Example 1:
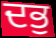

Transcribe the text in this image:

ਦਭੁ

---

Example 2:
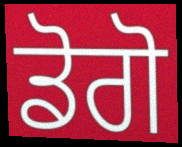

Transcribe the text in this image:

ਡੋਗੋ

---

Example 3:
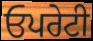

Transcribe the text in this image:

ਓਪਰੇਟੀ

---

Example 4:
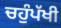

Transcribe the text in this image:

ਚਹੁੰਪੱਖੀ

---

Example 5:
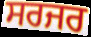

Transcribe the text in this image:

ਸਰਜਰ